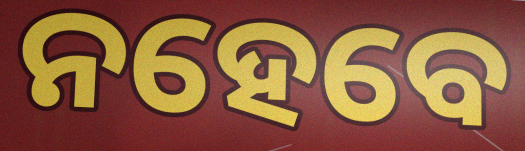
ନହେବେ